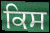
ਕਿਸ